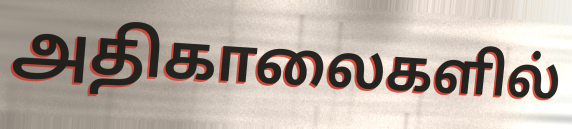
அதிகாலைகளில்